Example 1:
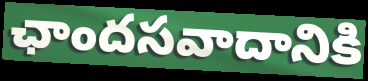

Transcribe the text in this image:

ఛాందసవాదానికి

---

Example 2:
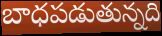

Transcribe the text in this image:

బాధపడుతున్నది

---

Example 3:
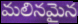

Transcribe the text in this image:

మలినమైన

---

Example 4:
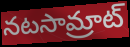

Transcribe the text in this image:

నటసామ్రాట్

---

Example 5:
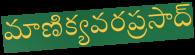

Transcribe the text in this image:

మాణిక్యవరప్రసాద్